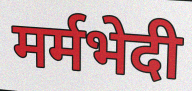
मर्मभेदी